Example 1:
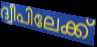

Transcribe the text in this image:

ദ്വീപിലേക്ക്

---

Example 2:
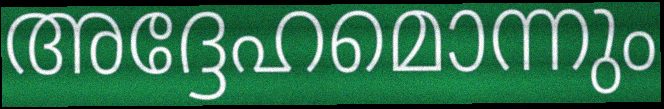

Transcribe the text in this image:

അദ്ദേഹമൊന്നും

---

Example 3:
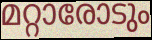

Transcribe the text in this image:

മറ്റാരോടും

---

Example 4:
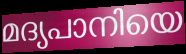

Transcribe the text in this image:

മദ്യപാനിയെ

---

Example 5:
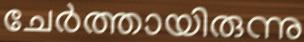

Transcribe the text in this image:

ചേർത്തായിരുന്നു